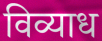
विव्याध